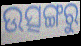
ଉତ୍ସଙ୍ଗରୁ